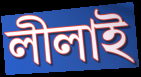
লীলাই